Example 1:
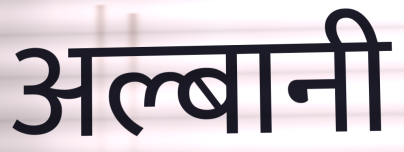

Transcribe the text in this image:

अल्बानी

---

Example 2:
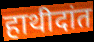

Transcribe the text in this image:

हाथीदांत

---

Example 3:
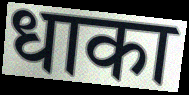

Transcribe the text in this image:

धाका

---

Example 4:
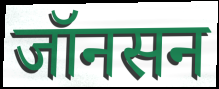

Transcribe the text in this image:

जॉनसन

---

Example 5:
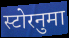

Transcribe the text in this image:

स्टोरनुमा